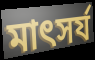
মাৎসর্য